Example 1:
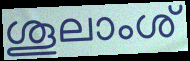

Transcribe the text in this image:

ശൂലാംശ്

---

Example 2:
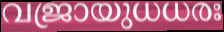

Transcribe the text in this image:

വജ്രായുധധരഃ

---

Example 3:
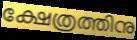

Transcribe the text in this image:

ക്ഷേത്രത്തിനു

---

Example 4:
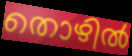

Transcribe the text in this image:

തൊഴിൽ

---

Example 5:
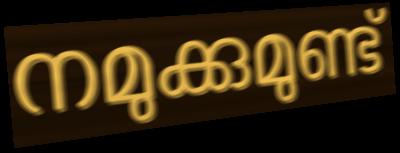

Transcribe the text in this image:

നമുക്കുമുണ്ട്